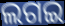
ଲଗଇ